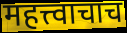
महत्त्वाचाच